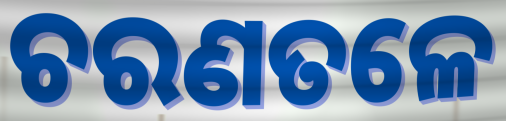
ଚରଣତଳେ